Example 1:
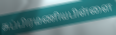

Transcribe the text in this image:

சுப்பிரமணியபிள்ளை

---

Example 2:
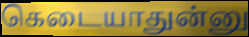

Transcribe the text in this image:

கெடையாதுன்னு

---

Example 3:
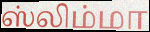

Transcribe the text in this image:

ஸ்லிம்மா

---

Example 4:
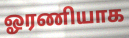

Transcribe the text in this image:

ஓரணியாக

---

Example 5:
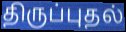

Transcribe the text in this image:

திருப்புதல்